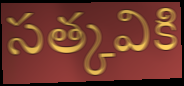
సత్కవికి